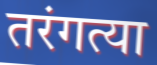
तरंगत्या